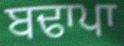
ਬਢਾਪਾ